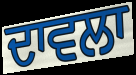
ਦਾਵਲਾ